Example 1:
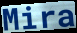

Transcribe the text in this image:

Mira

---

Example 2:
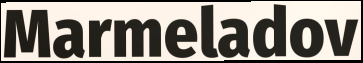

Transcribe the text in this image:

Marmeladov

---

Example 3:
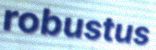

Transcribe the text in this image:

robustus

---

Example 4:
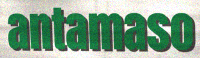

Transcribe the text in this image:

antamaso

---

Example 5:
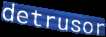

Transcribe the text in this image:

detrusor